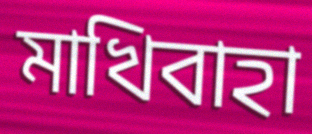
মাখিবাহা